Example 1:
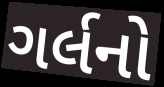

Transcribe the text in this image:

ગર્લનો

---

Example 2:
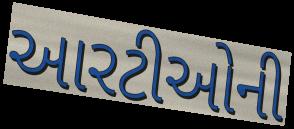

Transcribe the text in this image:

આરટીઓની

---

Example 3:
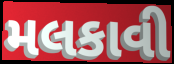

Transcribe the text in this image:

મલકાવી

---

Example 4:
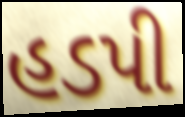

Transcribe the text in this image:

હડપી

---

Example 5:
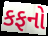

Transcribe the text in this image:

કફનો